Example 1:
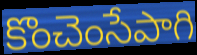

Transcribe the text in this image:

కొంచెంసేపాగి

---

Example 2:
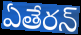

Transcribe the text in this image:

ఏతేరన్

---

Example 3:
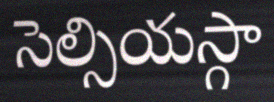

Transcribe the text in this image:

సెల్సియస్గా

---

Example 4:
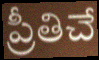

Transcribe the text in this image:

ప్రీతిచే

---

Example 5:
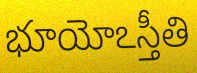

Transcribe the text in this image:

భూయోఽస్తీతి